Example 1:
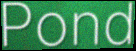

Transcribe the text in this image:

Pond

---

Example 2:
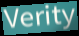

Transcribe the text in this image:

Verity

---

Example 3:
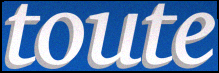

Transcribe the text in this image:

toute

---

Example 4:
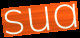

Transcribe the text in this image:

sua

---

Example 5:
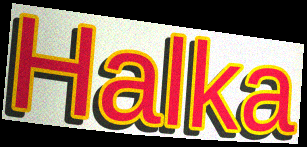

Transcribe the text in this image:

Halka